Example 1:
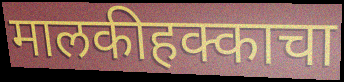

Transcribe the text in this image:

मालकीहक्काचा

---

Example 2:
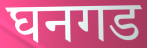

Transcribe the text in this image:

घनगड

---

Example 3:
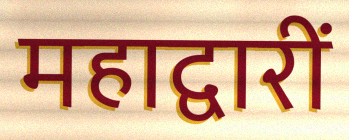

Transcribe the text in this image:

महाद्वारीं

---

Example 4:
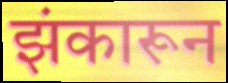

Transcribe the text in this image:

झंकारून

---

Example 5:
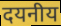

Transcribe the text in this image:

दयनीय